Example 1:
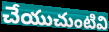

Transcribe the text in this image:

చేయుచుంటివి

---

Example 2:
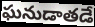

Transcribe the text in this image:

ఘనుడాతడే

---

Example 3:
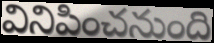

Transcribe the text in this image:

వినిపించనుంది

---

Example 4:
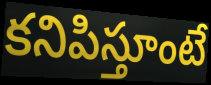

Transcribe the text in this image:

కనిపిస్తూంటే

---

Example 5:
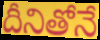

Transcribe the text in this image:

దీనితోనే